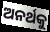
ଅନର୍ଥକୁ